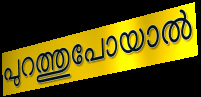
പുറത്തുപോയാൽ